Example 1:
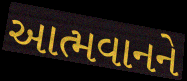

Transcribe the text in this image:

આત્મવાનને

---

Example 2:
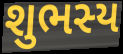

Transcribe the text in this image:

શુભસ્ય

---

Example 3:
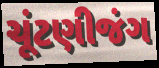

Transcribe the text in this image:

ચૂંટણીજંગ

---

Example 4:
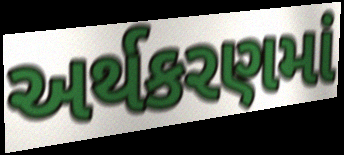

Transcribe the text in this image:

અર્થકરણમાં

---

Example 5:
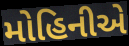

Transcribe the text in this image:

મોહિનીએ